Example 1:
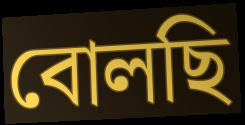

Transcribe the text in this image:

বোলছি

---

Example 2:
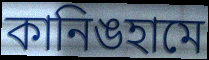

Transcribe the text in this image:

কানিঙহামে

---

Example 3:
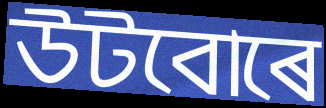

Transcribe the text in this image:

উটবোৰে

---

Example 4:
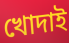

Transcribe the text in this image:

খোদাই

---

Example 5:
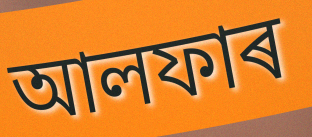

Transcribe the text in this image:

আলফাৰ